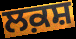
ਲਕ਼ਸ਼